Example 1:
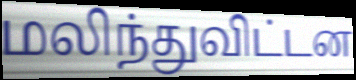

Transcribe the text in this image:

மலிந்துவிட்டன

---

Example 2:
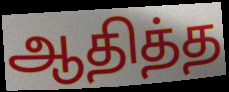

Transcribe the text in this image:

ஆதித்த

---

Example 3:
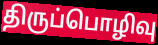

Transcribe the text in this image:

திருப்பொழிவு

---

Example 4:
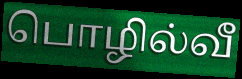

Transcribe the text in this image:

பொழில்வீ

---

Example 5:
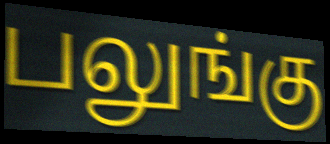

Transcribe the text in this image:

பலுங்கு